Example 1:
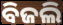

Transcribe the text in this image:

ବିଜଲି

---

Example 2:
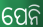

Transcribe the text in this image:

ପେନି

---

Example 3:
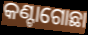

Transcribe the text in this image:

କଣ୍ଟାଗୋଛା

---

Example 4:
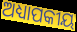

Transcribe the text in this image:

ଅଧ୍ୟାପକୀୟ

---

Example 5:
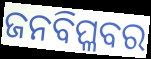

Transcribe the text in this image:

ଜନବିପ୍ଳବର